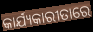
କାର୍ଯ୍ୟକାରୀତାରେ